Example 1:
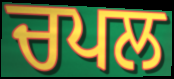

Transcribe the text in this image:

ਚਪਲ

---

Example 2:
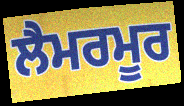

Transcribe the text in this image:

ਲੈਮਰਮੂਰ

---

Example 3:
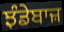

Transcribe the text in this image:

ਝੰਡੇਬਾਜ਼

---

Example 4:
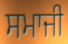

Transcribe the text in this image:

ਸਮਾਜੀ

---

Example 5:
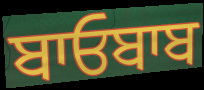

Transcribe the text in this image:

ਬਾਓਬਾਬ